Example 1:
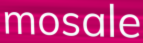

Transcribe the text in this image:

mosale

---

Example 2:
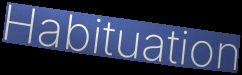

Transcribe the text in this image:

Habituation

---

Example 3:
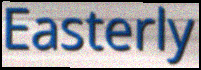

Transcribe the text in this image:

Easterly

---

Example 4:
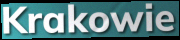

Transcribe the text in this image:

Krakowie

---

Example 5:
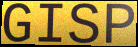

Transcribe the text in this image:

GISP